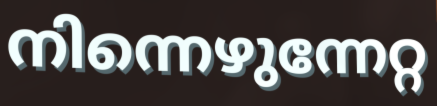
നിന്നെഴുന്നേറ്റ